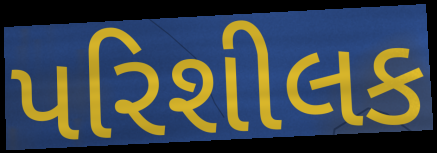
પરિશીલક